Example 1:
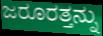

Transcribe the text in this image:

ಜರೂರತ್ತನ್ನು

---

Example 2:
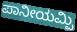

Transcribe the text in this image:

ಪಾನೀಯಮ್ಪಿ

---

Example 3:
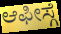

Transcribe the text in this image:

ಆಫೀಸ್ಗೆ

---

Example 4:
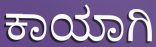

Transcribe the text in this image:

ಕಾಯಾಗಿ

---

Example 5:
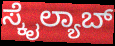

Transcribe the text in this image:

ಸ್ಕೈಲ್ಯಾಬ್